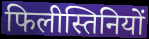
फिलीस्तिनियों